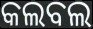
କଲବଲ